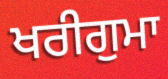
ਖਰੀਗੁਮਾ